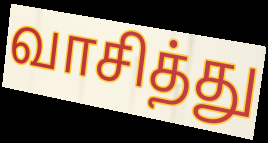
வாசித்து